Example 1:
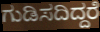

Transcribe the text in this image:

ಗುಡಿಸದಿದ್ದರೆ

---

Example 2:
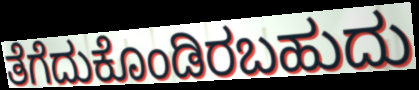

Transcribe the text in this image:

ತೆಗೆದುಕೊಂಡಿರಬಹುದು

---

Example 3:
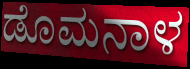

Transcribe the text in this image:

ಡೊಮನಾಳ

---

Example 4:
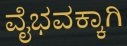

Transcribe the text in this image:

ವೈಭವಕ್ಕಾಗಿ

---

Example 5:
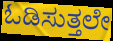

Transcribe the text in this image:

ಓಡಿಸುತ್ತಲೇ